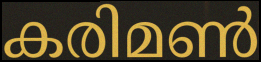
കരിമൺ